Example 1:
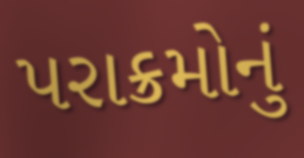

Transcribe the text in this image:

પરાક્રમોનું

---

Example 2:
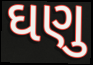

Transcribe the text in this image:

ઘણુ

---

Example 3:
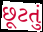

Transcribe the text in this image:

છૂટતું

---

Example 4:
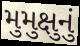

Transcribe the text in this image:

મુમુક્ષુનું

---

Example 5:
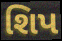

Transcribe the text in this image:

શિપ